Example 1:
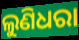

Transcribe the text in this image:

ଲୁଣିଧରା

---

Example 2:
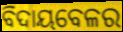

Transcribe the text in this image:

ବିଦାୟବେଳର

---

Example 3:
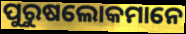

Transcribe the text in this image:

ପୁରୁଷଲୋକମାନେ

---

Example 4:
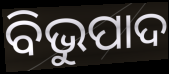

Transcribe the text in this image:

ବିଭୁପାଦ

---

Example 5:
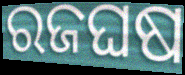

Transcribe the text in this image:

ରଜଘଷ